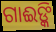
ଗାଈଙ୍କି